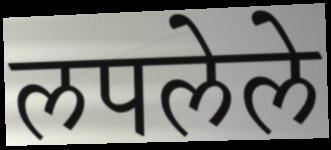
लपलेले